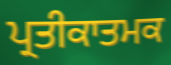
ਪ੍ਰਤੀਕਾਤਮਕ